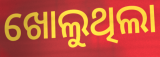
ଖୋଲୁଥିଲା